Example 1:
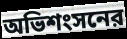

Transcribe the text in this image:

অভিশংসনের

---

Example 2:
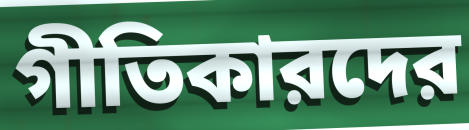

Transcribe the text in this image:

গীতিকারদের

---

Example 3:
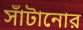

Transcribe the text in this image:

সাঁটানোর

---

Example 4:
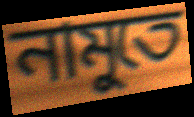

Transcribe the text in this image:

নামুতে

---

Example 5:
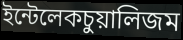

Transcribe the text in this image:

ইন্টেলেকচুয়ালিজম